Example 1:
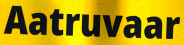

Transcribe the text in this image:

Aatruvaar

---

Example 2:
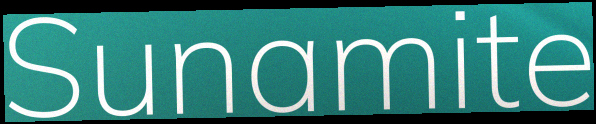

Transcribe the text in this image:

Sunamite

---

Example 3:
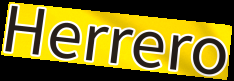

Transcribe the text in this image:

Herrero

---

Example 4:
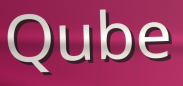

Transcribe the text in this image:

Qube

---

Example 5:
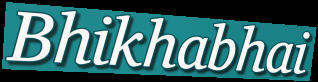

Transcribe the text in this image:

Bhikhabhai